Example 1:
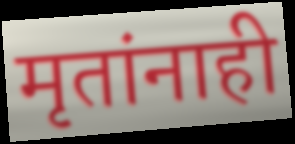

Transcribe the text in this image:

मृतांनाही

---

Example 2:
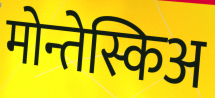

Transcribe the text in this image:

मोन्तेस्किअ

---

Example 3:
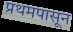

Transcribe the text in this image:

प्रथमपासून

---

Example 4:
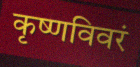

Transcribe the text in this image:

कृष्णविवरं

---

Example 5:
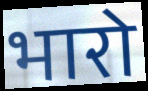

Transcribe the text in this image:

भारो